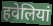
हवेलियां